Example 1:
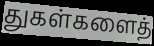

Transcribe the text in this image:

துகள்களைத்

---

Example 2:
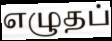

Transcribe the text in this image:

எழுதப்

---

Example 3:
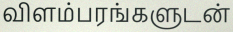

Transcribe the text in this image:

விளம்பரங்களுடன்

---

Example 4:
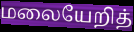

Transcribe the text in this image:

மலையேறித்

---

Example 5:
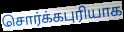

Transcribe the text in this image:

சொர்க்கபுரியாக